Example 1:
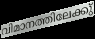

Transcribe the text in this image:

വിമാനത്തിലേക്കു്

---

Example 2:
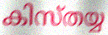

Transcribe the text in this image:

കിസ്തയ്യ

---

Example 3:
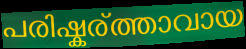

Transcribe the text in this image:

പരിഷ്കര്ത്താവായ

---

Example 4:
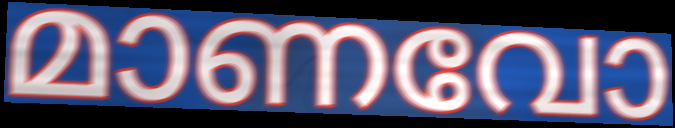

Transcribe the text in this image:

മാണവോ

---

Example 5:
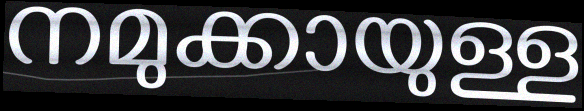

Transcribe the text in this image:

നമുക്കായുള്ള